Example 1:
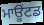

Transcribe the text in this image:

ਮਾਊਂਟਡ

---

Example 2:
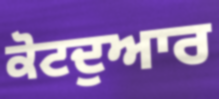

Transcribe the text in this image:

ਕੋਟਦੁਆਰ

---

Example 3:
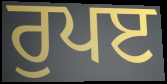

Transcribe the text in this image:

ਰੁਪੲ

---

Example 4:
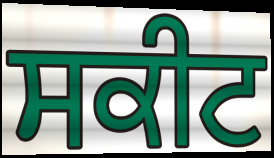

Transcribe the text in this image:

ਸਕੀਟ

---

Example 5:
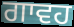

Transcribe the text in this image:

ਗਾਵਹ